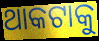
ଥାକଟାକୁ